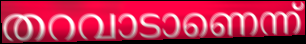
തറവാടാണെന്ന്